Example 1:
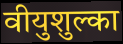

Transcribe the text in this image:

वीयुशुल्का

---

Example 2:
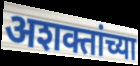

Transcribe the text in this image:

अशक्तांच्या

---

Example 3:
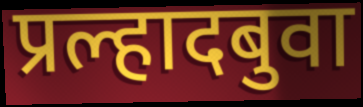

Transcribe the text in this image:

प्रल्हादबुवा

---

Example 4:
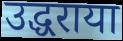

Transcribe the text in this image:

उद्धराया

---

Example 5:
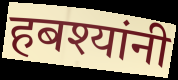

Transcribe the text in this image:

हबश्यांनी